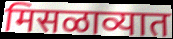
मिसळाव्यात